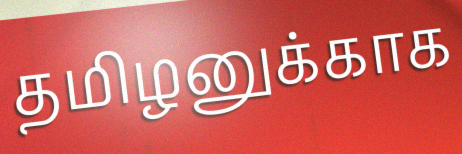
தமிழனுக்காக